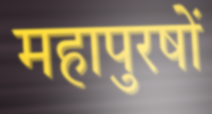
महापुरषों